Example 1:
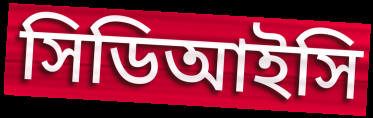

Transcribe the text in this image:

সিডিআইসি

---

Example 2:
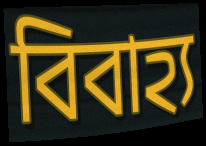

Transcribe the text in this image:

বিবাহ্য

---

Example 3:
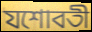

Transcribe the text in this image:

যশোবতী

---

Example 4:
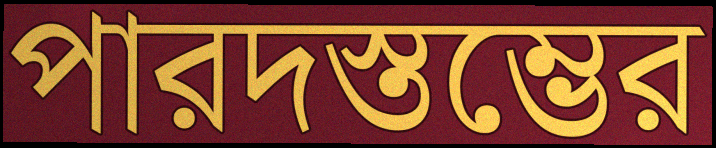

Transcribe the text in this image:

পারদস্তম্ভের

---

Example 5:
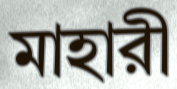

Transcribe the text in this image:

মাহারী